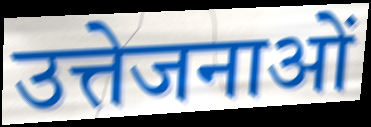
उत्तेजनाओं